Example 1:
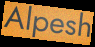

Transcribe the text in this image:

Alpesh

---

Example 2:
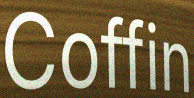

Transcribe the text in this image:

Coffin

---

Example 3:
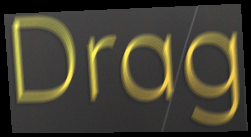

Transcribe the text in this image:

Drag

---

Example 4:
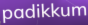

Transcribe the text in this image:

padikkum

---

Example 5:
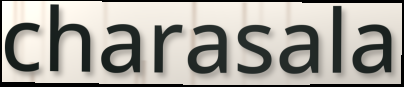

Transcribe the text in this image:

charasala